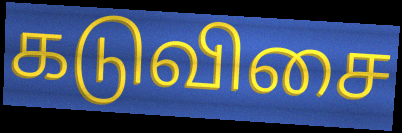
கடுவிசை